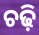
ଚଢ଼ି